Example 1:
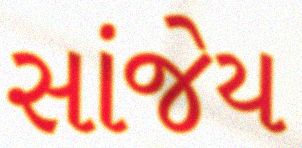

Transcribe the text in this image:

સાંજેય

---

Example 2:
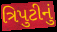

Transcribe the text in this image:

ત્રિપુટીનું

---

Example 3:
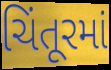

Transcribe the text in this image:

ચિંતૂરમાં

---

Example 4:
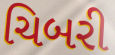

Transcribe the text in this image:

ચિબરી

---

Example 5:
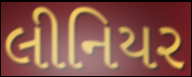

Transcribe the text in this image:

લીનિયર